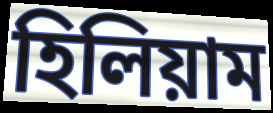
হিলিয়াম